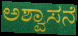
ಅಶ್ವಾಸನೆ